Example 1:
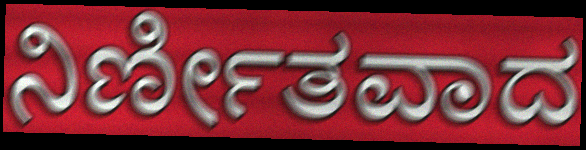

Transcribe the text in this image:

ನಿರ್ಣೀತವಾದ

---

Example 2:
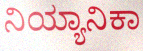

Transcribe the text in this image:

ನಿಯ್ಯಾನಿಕಾ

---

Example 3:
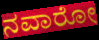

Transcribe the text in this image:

ನವಾರೋ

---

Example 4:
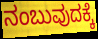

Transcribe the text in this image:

ನಂಬುವುದಕ್ಕೆ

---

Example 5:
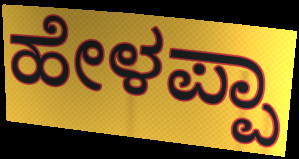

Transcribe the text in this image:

ಹೇಳಪ್ಪಾ